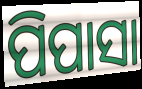
ପିପାସା